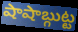
షాషాబ్గుట్ట